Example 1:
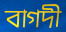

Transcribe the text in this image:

বাগদী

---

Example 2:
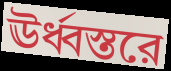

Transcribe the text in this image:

ঊর্ধ্বস্তরে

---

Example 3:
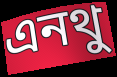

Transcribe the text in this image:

এনথু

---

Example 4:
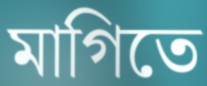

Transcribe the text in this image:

মাগিতে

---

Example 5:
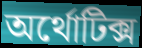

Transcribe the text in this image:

অর্থোটিক্স